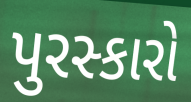
પુરસ્કારો